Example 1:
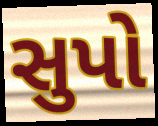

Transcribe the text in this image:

સુપો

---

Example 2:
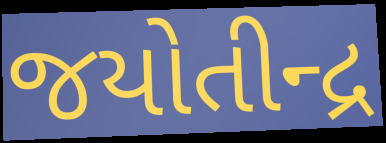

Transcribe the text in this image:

જયોતીન્દ્ર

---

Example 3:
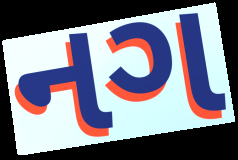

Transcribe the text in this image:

નગ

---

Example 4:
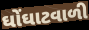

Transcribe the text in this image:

ઘોંઘાટવાળી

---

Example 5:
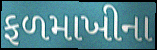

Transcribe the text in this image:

ફળમાખીના